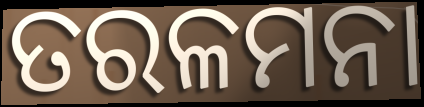
ତରଳମନା